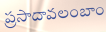
ప్రసాదావలంబాం